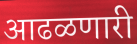
आढळणारी